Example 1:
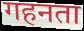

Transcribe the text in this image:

गहनता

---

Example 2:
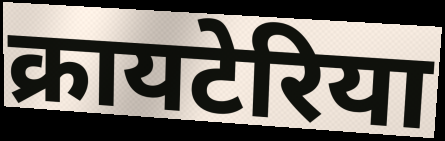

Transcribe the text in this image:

क्रायटेरिया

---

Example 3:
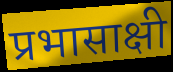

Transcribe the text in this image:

प्रभासाक्षी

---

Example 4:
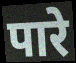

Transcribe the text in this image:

पारे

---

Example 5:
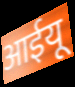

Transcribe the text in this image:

आईयू